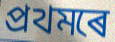
প্ৰথমৰে